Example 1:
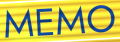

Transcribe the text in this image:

MEMO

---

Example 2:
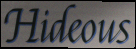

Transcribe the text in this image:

Hideous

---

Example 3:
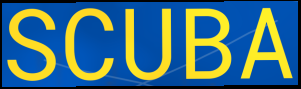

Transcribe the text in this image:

SCUBA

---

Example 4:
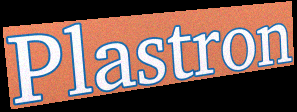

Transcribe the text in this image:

Plastron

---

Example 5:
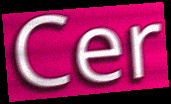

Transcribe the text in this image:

Cer